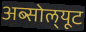
अब्सोल्यूट